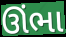
ઊંભા